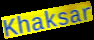
Khaksar